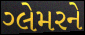
ગ્લેમરને